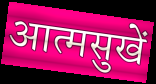
आत्मसुखें